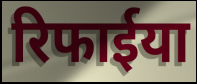
रिफाईया